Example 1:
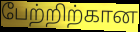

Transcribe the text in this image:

பேற்றிற்கான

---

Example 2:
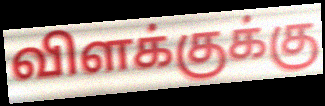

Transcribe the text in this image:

விளக்குக்கு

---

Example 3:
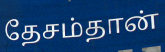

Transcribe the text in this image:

தேசம்தான்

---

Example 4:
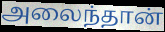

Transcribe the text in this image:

அலைந்தான்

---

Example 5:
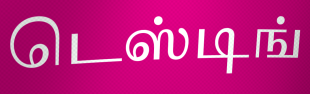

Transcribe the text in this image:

டெஸ்டிங்